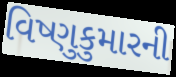
વિષ્ણુકુમારની